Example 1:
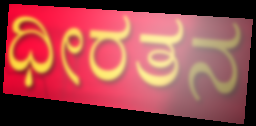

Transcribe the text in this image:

ಧೀರತನ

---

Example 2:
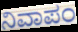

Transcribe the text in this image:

ನಿವಾಪಂ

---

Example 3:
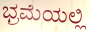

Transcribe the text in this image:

ಭ್ರಮೆಯಲ್ಲಿ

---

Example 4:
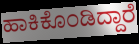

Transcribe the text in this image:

ಹಾಕಿಕೊಂಡಿದ್ದಾರೆ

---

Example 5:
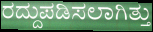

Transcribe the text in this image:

ರದ್ದುಪಡಿಸಲಾಗಿತ್ತು